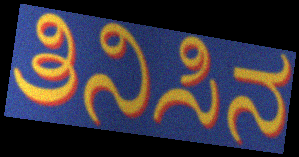
ತಿನಿಸಿನ